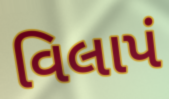
વિલાપં